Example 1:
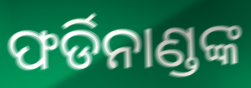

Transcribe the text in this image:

ଫର୍ଡିନାଣ୍ଡଙ୍କ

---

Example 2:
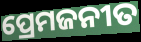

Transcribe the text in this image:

ପ୍ରେମଜନୀତ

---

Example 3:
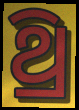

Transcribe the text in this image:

ଥ୍ରି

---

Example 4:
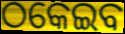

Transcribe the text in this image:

ଠକେଇବ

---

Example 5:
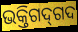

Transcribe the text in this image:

ଭକ୍ତିଗଦ୍‌ଗଦ